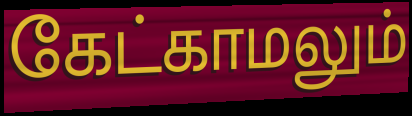
கேட்காமலும்